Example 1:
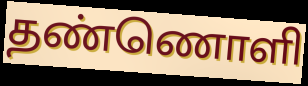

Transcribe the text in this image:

தண்ணொளி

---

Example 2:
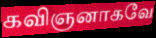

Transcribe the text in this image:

கவிஞனாகவே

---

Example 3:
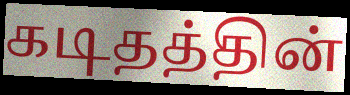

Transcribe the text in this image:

கடிதத்தின்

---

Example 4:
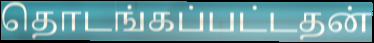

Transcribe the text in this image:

தொடங்கப்பட்டதன்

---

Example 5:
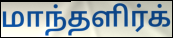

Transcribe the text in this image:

மாந்தளிர்க்